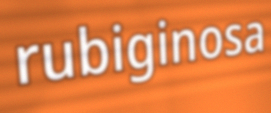
rubiginosa